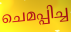
ചെമപ്പിച്ച